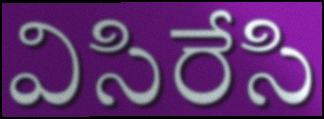
విసిరేసి